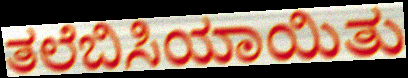
ತಲೆಬಿಸಿಯಾಯಿತು